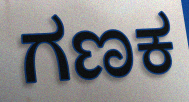
ಗಣಕ